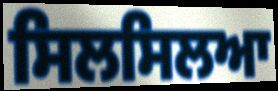
ਸਿਲਸਿਲਆ